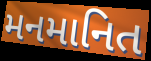
મનમાનિત